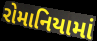
રોમાનિયામાં